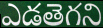
ఎడతెగని